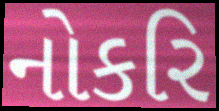
નોકરિ